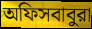
অফিসবাবুরা